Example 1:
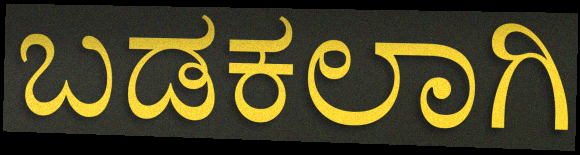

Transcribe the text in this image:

ಬಡಕಲಾಗಿ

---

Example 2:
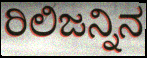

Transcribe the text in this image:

ರಿಲಿಜನ್ನಿನ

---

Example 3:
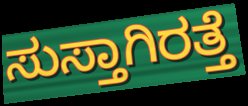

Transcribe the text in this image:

ಸುಸ್ತಾಗಿರತ್ತೆ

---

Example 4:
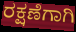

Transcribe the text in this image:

ರಕ್ಷಣೆಗಾಗಿ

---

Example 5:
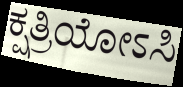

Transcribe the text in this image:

ಕ್ಷತ್ರಿಯೋಽಸಿ